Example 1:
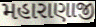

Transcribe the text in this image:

મહારાણાજી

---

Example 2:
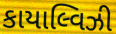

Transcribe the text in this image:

કાયાલ્વિઝી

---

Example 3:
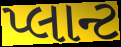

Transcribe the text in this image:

પ્લાન્ટ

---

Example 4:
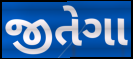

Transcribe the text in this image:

જીતેગા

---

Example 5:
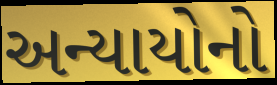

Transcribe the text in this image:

અન્યાયોનો